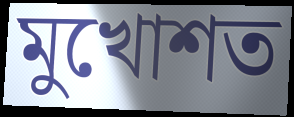
মুখোশত